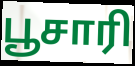
பூசாரி